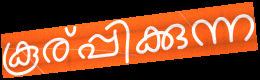
കൂര്പ്പിക്കുന്ന